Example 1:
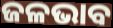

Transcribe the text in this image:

ଜଳଭାବ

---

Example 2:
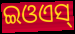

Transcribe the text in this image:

ଇଓଏସ୍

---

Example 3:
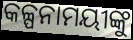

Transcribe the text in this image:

କଳ୍ପନାମୟୀଙ୍କୁ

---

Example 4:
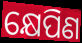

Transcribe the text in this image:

କ୍ଷେପିଣ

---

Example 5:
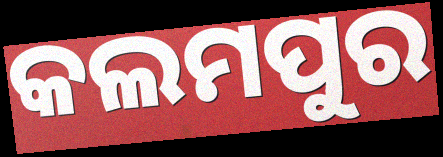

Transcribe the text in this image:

କଲମପୁର